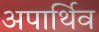
अपार्थिव